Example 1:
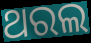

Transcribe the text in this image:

ଥରଲ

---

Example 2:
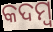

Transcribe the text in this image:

କଦମ୍ୱ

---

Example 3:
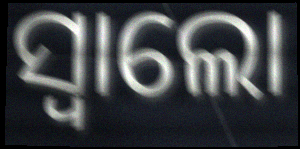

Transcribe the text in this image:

ସ୍ବାଲୋ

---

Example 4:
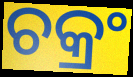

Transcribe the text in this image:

ଚକ୍ରଂ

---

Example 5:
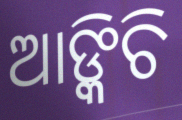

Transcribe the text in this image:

ଆଙ୍କିଚି